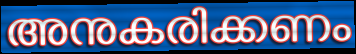
അനുകരിക്കണം